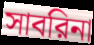
সাবরিনা